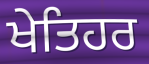
ਖੇਤਿਹਰ